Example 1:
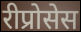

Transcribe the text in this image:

रीप्रोसेस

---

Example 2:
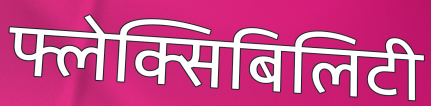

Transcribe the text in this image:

फ्लेक्सिबिलिटी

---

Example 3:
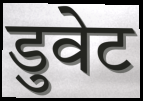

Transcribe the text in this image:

डुवेट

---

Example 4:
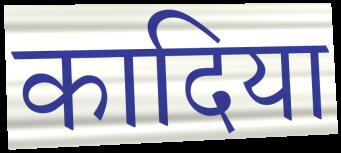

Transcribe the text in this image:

कादिया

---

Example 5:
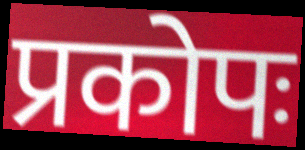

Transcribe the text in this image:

प्रकोपः